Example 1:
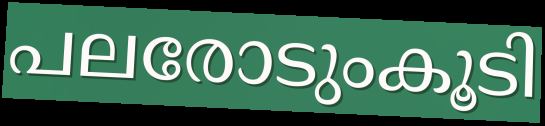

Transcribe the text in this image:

പലരോടുംകൂടി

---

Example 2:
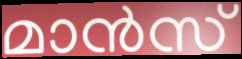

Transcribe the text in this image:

മാൻസ്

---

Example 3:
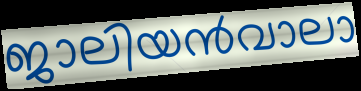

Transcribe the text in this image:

ജാലിയൻവാലാ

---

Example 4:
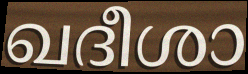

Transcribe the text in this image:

ഖദീശാ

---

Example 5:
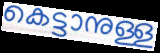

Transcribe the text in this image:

കെട്ടാനുള്ള